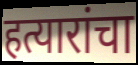
हत्यारांचा